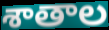
శాతాల